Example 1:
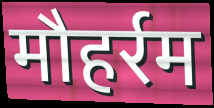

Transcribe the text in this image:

मौहर्रम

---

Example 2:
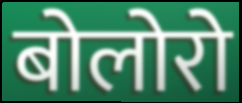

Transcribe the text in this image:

बोलोरो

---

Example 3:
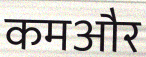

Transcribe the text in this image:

कमऔर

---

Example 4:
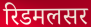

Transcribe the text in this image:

रिडमलसर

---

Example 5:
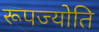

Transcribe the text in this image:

रूपज्योति